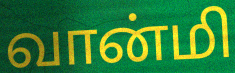
வான்மி